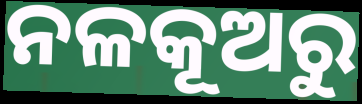
ନଳକୂଅରୁ